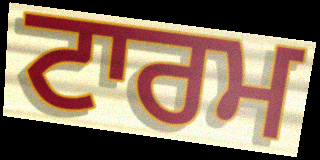
ਟਾਰਮ